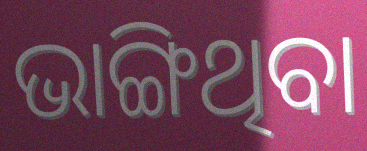
ଭାଙ୍ଗିଥିବା